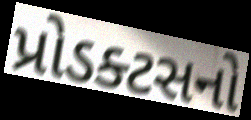
પ્રોડક્ટસનો